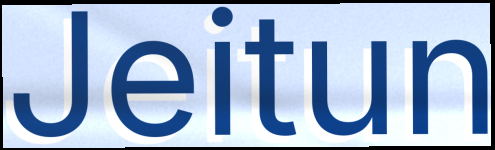
Jeitun